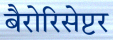
बैरोरिसेप्टर